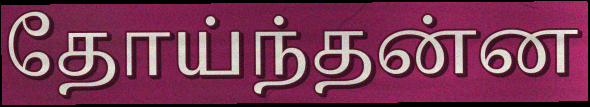
தோய்ந்தன்ன